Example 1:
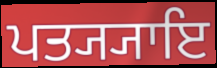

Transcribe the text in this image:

ਪਤ੍ਯ੍ਯਾਇ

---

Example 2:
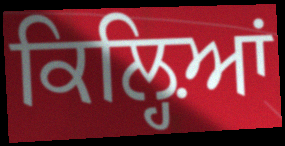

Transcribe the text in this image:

ਕਿਲ਼੍ਹਿਆਂ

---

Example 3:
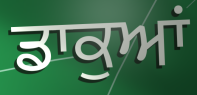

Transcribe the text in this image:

ਡਾਕੁਆਂ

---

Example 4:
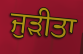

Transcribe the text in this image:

ਜੁੜੀਤਾ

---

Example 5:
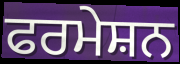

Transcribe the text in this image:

ਫਰਮੇਸ਼ਨ